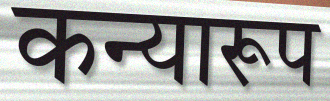
कन्यारूप